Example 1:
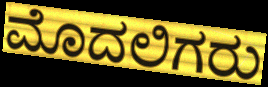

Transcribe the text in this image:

ಮೊದಲಿಗರು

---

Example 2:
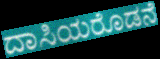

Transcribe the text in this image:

ದಾಸಿಯರೊಡನೆ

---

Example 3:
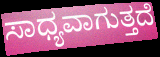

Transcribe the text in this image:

ಸಾಧ್ಯವಾಗುತ್ತದೆ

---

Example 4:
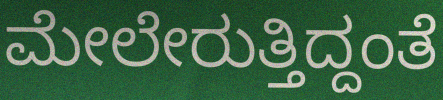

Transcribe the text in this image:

ಮೇಲೇರುತ್ತಿದ್ದಂತೆ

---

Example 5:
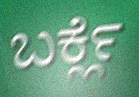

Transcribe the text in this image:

ಬರ್ಕ್ಲೆ